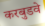
करबुडवे